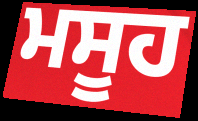
ਮਸੂਹ